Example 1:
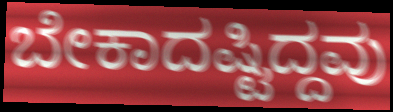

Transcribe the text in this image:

ಬೇಕಾದಷ್ಟಿದ್ದವು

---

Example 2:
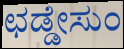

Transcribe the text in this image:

ಛಡ್ಡೇಸುಂ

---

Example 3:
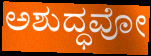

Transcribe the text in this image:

ಅಶುದ್ಧವೋ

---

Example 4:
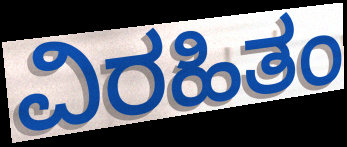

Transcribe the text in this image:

ವಿರಹಿತಂ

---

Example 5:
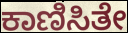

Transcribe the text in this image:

ಕಾಣಿಸಿತೇ